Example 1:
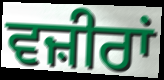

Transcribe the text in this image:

ਵਜ਼ੀਰਾਂ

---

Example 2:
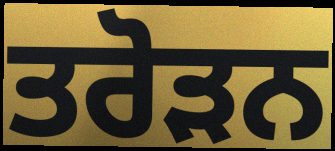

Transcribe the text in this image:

ਤਰੋੜਨ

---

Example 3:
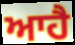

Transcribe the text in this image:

ਆਹੈ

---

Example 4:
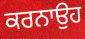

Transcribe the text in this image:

ਕਰਨਾਉਹ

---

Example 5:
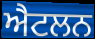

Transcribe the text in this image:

ਐਟਲਨ